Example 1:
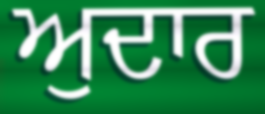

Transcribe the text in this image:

ਅੁਦਾਰ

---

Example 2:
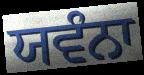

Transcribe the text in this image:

ਯਵੰਨਾ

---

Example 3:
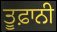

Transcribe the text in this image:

ਤੂਫ਼ਾਨੀ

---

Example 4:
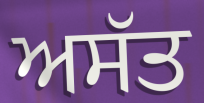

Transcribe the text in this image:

ਅਸੱਤ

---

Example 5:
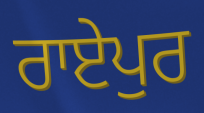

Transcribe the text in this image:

ਰਾਏਪੁਰ